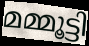
മമ്മൂട്ടി